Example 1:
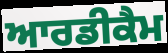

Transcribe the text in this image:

ਆਰਡੀਕੈਮ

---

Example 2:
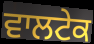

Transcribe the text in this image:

ਵਾਲਟੇਕ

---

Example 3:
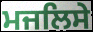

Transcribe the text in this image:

ਮਜਲਿਸੇ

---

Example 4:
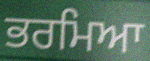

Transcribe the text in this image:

ਭਰਮਿਆ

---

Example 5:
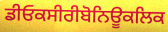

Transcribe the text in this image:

ਡੀਓਕਸੀਰੀਬੋਨਿਊਕਲਿਕ